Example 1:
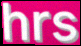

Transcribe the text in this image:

hrs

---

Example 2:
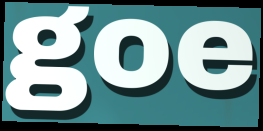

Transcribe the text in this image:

goe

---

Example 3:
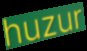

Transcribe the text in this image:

huzur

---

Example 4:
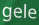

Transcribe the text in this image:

gele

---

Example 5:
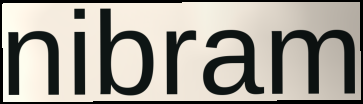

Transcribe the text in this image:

nibram